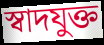
স্বাদযুক্ত